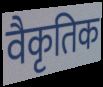
वैकृतिक